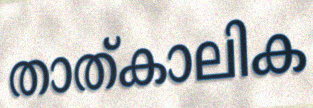
താത്കാലിക